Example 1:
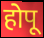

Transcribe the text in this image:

होपू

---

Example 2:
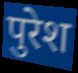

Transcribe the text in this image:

पुरेश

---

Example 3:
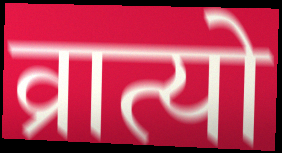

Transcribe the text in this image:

व्रात्यो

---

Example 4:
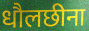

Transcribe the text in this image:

धौलछीना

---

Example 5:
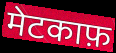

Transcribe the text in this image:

मेटकाफ़